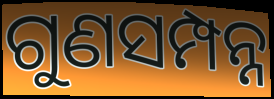
ଗୁଣସମ୍ପନ୍ନ